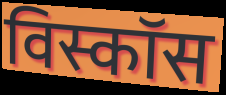
विस्कॉस